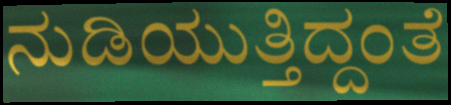
ನುಡಿಯುತ್ತಿದ್ದಂತೆ